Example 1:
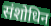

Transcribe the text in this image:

संशोधिन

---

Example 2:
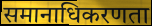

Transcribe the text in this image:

समानाधिकरणता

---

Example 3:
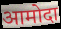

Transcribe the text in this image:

आमोदा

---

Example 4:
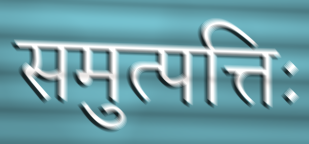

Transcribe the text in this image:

समुत्पत्तिः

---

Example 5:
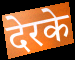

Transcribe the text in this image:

देरके